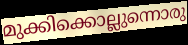
മുക്കിക്കൊല്ലുന്നൊരു